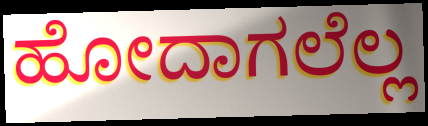
ಹೋದಾಗಲೆಲ್ಲ